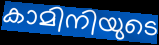
കാമിനിയുടെ